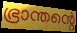
ഭ്രാന്തന്റെ